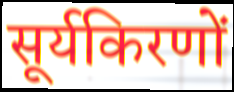
सूर्यकिरणों